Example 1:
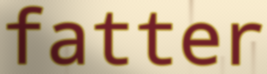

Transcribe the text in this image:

fatter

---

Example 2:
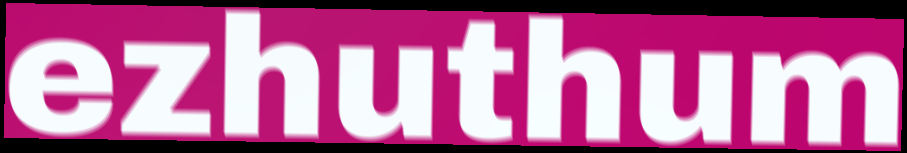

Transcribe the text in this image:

ezhuthum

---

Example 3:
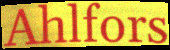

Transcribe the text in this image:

Ahlfors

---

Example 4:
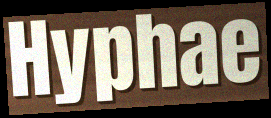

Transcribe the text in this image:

Hyphae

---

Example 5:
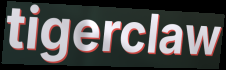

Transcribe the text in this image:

tigerclaw